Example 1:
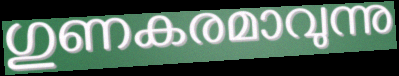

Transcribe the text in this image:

ഗുണകരമാവുന്നു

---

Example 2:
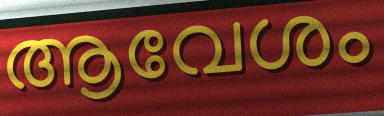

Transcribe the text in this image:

ആവേശം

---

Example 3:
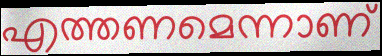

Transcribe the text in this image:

എത്തണമെന്നാണ്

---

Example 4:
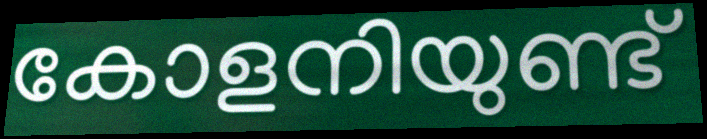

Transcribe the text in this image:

കോളനിയുണ്ട്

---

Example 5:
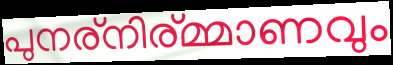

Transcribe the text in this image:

പുനര്നിര്മ്മാണവും